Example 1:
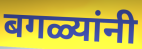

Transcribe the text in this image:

बगळ्यांनी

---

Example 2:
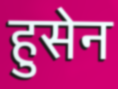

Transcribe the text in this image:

हुसेन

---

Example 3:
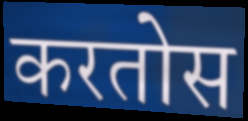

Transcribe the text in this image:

करतोस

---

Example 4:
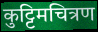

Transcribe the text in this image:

कुट्टिमचित्रण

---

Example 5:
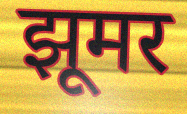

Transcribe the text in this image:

झूमर